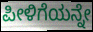
ಪೀಳಿಗೆಯನ್ನೇ